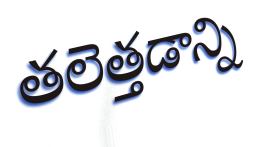
తలెత్తడాన్ని